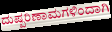
ದುಷ್ಪರಿಣಾಮಗಳಿಂದಾಗಿ